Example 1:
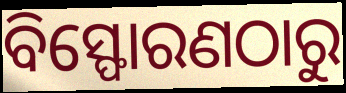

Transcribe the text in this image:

ବିସ୍ଫୋରଣଠାରୁ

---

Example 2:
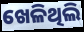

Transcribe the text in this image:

ଖେଳିଥିଲି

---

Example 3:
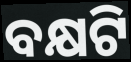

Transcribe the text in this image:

ବକ୍ଷଟି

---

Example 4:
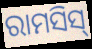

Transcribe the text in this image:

ରାମସିସ୍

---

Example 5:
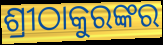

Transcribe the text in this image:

ଶ୍ରୀଠାକୁରଙ୍କର